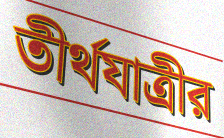
তীর্থযাত্রীর